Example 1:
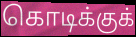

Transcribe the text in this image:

கொடிக்குக்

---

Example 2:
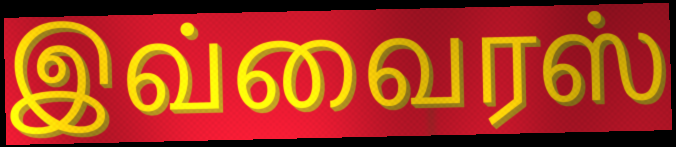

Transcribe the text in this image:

இவ்வைரஸ்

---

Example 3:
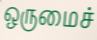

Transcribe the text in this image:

ஒருமைச்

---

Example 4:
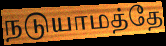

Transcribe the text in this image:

நடுயாமத்தே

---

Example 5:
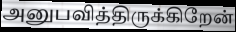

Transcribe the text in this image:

அனுபவித்திருக்கிறேன்